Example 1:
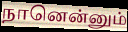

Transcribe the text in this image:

நானென்னும்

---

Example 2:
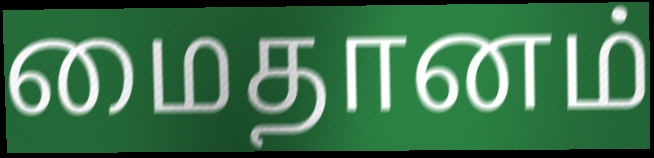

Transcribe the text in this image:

மைதானம்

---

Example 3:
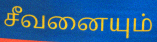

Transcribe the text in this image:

சீவனையும்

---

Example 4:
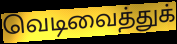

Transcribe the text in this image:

வெடிவைத்துக்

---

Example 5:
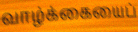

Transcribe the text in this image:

வாழ்க்கையைப்